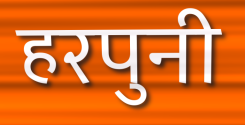
हरपुनी